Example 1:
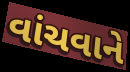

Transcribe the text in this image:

વાંચવાને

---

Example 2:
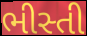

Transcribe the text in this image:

ભીસ્તી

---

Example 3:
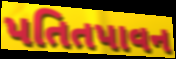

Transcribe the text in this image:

પતિતપાવન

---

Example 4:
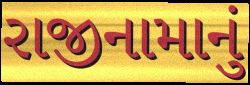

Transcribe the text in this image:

રાજીનામાનું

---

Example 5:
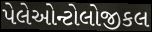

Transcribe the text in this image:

પેલેઓન્ટોલોજીકલ